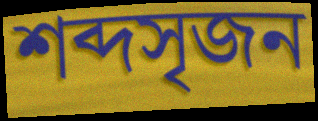
শব্দসৃজন